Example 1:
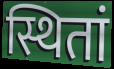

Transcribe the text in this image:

स्थितां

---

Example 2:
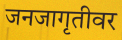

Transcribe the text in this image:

जनजागृतीवर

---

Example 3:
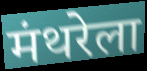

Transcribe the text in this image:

मंथरेला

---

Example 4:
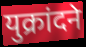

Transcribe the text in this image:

युक्रांदने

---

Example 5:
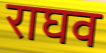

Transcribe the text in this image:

राघव